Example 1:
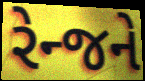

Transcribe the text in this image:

રેન્જને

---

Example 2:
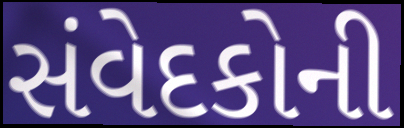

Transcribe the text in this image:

સંવેદકોની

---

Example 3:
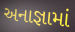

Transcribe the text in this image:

અનાજ્ઞામાં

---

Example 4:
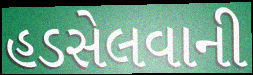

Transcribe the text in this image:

હડસેલવાની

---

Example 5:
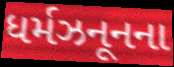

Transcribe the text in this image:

ધર્મઝનૂનના